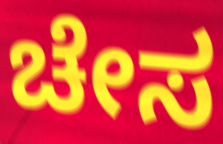
ಚೇಸ